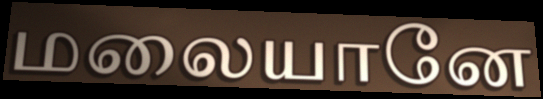
மலையானே